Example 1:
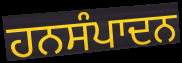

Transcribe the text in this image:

ਹਨਸੰਪਾਦਨ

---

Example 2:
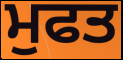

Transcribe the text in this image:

ਮੁਫਤ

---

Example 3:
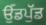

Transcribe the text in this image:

ਉੱਡਪੁੱਡ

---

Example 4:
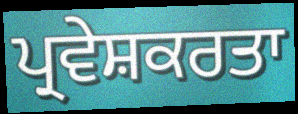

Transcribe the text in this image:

ਪ੍ਰਵੇਸ਼ਕਰਤਾ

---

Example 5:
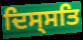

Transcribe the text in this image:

ਦਿਸ੍ਸਤਿ